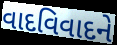
વાદવિવાદને